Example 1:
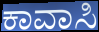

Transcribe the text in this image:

ಕಾವಾಸಿ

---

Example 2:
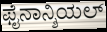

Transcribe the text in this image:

ಫೈನಾನ್ಶಿಯಲ್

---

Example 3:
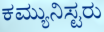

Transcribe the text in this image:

ಕಮ್ಯುನಿಸ್ಟರು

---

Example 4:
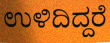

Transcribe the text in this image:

ಉಳಿದಿದ್ದರೆ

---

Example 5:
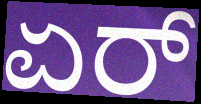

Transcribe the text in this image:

ಏರ್